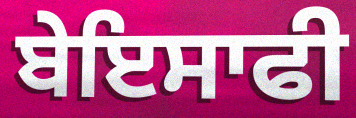
ਬੇਇਸਾਫੀ